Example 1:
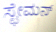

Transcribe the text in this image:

ಸ್ಟೇಮನ್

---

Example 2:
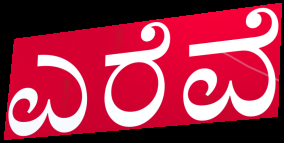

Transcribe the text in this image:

ಎರೆವೆ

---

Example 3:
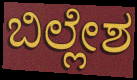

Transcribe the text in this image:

ಬಿಲ್ಲೇಶ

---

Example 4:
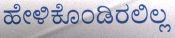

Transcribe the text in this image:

ಹೇಳಿಕೊಂಡಿರಲಿಲ್ಲ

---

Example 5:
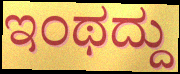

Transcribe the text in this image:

ಇಂಥದ್ದು